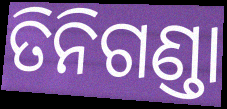
ତିନିଗଣ୍ଡା